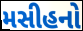
મસીહનો